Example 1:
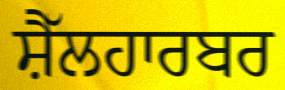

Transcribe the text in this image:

ਸ਼ੈੱਲਹਾਰਬਰ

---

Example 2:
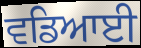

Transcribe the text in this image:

ਵਡਿਆਈ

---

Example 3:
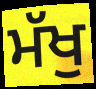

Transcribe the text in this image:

ਮੱਖੁ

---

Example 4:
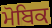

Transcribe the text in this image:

ਮੋਬਿਕ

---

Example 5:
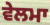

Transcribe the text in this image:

ਵੇਲਮਾ